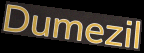
Dumezil